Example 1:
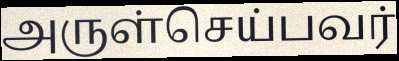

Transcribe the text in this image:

அருள்செய்பவர்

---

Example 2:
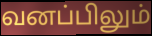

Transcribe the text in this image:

வனப்பிலும்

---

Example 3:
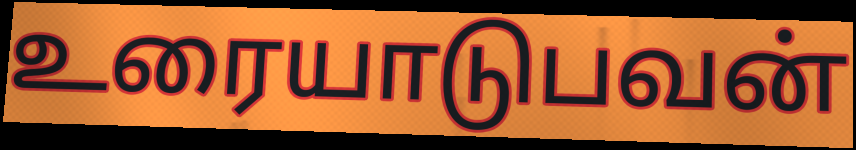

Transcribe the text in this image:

உரையாடுபவன்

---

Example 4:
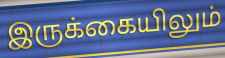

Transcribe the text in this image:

இருக்கையிலும்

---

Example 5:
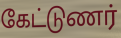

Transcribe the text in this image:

கேட்டுணர்